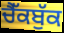
ਚੈੱਕਬੁੱਕ